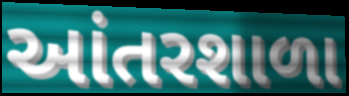
આંતરશાળા